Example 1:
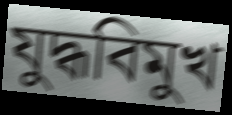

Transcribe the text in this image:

যুদ্ধবিমুখ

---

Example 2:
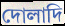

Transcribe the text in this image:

দোলাদি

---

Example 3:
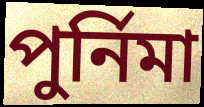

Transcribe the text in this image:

পুর্নিমা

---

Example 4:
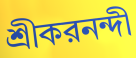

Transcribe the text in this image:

শ্রীকরনন্দী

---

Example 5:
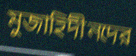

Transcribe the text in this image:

মুজাহিদীনদের